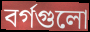
বর্গগুলো